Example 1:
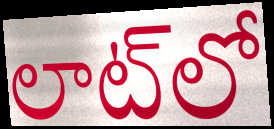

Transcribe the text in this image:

లాట్‌లో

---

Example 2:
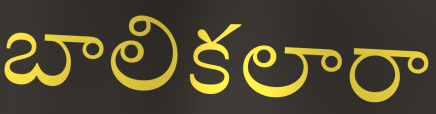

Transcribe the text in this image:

బాలికలారా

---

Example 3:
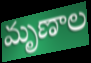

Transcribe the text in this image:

మృణాల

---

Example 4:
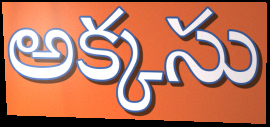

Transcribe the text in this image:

అక్కసు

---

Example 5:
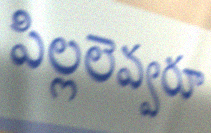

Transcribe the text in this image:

పిల్లలెవ్వరూ